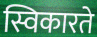
स्विकारते